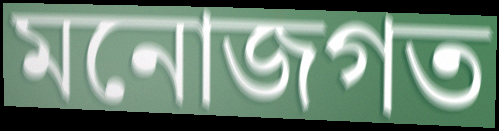
মনোজগত